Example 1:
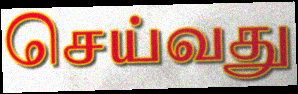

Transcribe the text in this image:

செய்வது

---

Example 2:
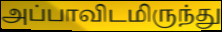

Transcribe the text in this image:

அப்பாவிடமிருந்து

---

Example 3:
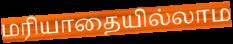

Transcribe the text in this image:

மரியாதையில்லாம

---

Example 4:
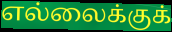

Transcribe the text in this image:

எல்லைக்குக்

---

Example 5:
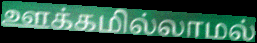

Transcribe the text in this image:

ஊக்கமில்லாமல்